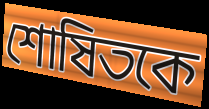
শোষিতকে